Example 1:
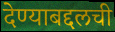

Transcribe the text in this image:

देण्याबद्दलची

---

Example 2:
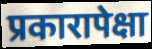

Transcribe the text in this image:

प्रकारापेक्षा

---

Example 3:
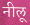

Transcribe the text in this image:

नीलू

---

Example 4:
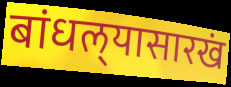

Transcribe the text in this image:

बांधल्यासारखं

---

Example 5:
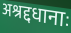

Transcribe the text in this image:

अश्रद्दधानाः